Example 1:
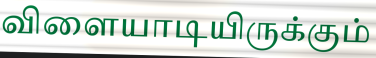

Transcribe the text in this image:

விளையாடியிருக்கும்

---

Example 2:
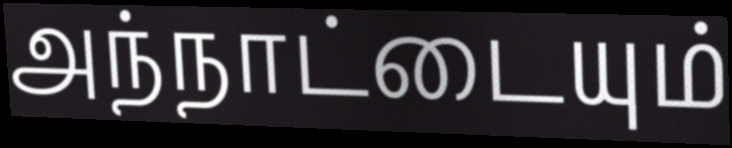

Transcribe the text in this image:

அந்நாட்டையும்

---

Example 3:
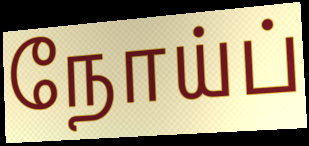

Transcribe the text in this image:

நோய்ப்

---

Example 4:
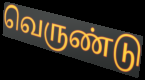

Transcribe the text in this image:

வெருண்டு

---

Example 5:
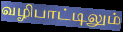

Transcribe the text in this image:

வழிபாட்டிலும்